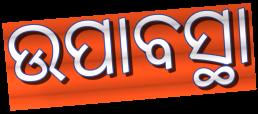
ଉପାବସ୍ଥା